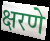
क्षरणे